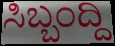
ಸಿಬ್ಬಂದ್ದಿ